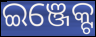
ଇଞ୍ଜେକ୍ଟ